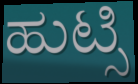
ಹುಟ್ಸಿ